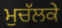
ਮੁਚੱਲਕੇ